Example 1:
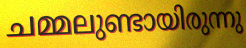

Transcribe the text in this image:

ചമ്മലുണ്ടായിരുന്നു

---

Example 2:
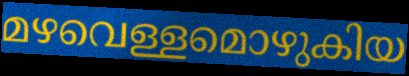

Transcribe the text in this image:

മഴവെള്ളമൊഴുകിയ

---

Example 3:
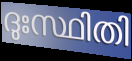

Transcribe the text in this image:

ദുഃസ്ഥിതി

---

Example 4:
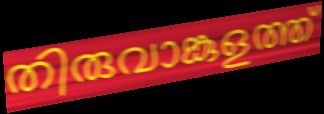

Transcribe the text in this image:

തിരുവാങ്കുളത്ത്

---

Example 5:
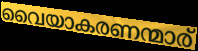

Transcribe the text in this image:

വൈയാകരണന്മാര്